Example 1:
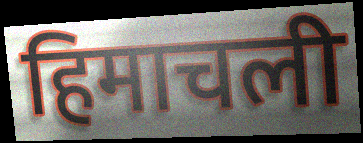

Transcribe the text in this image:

हिमाचली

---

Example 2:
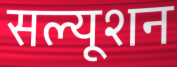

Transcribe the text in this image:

सल्यूशन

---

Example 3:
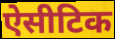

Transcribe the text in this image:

ऐसीटिक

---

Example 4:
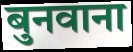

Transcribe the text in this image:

बुनवाना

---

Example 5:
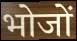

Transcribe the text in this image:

भोजों